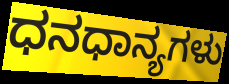
ಧನಧಾನ್ಯಗಳು